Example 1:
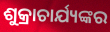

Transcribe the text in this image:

ଶୁକ୍ରାଚାର୍ଯ୍ୟଙ୍କର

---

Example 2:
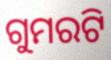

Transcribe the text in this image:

ଗୁମରଟି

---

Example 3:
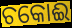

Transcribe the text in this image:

ଚକୋଈ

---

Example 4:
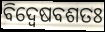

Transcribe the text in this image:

ବିଦ୍ୱେଷବଶତଃ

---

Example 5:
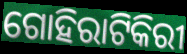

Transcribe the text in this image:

ଗୋହିରାଟିକିରୀ